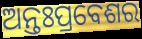
ଅନ୍ତଃପ୍ରବେଶର